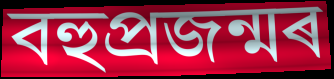
বহুপ্ৰজন্মৰ